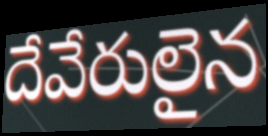
దేవేరులైన